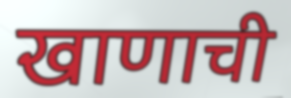
खाणाची